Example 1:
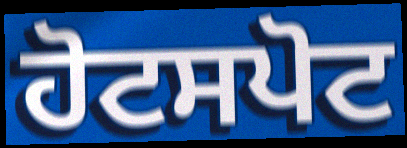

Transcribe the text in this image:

ਹੋਟਸਪੋਟ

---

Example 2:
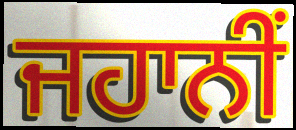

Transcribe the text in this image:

ਜਹਾਨੀਂ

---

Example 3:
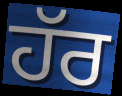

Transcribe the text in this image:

ਹੱਰ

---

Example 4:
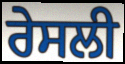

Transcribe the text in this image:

ਰੇਸਲੀ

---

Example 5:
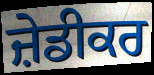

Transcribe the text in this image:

ਜ਼ੇਡੀਕਰ